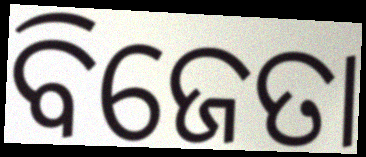
ବିଜେତା